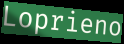
Loprieno